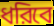
ধরিবে